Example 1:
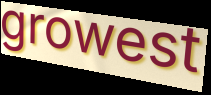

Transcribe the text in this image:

growest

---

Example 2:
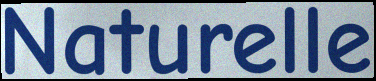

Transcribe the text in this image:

Naturelle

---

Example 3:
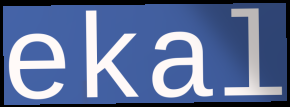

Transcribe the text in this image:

ekal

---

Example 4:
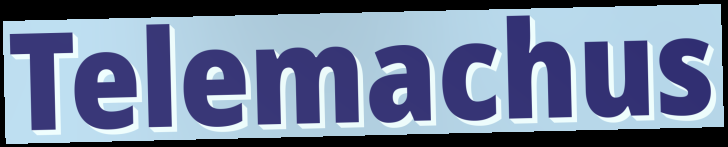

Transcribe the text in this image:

Telemachus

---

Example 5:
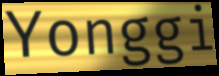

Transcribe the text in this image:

Yonggi